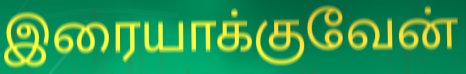
இரையாக்குவேன்